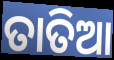
ତାତିଆ